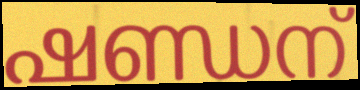
ഷണ്ഡന്